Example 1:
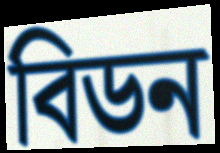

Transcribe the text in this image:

বিডন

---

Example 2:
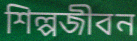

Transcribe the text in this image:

শিল্পজীবন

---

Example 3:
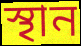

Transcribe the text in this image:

স্থান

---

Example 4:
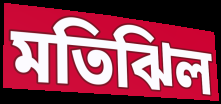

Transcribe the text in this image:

মতিঝিল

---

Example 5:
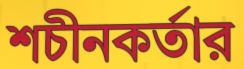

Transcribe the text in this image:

শচীনকর্তার